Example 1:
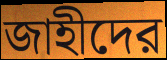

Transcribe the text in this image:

জাহীদের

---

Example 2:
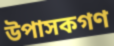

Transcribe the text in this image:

উপাসকগণ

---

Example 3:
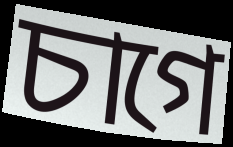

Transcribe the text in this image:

চাগে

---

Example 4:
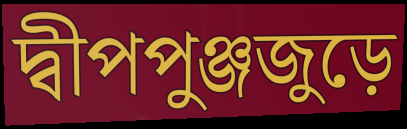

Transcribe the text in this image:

দ্বীপপুঞ্জজুড়ে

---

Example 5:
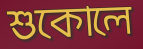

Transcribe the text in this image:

শুকোলে